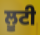
ਲੂਟੀ